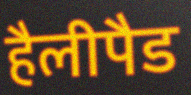
हैलीपैड